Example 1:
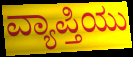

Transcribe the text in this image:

ವ್ಯಾಪ್ತಿಯು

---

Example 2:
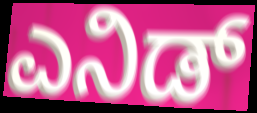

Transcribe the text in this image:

ಎನಿಡ್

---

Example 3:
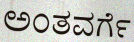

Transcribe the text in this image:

ಅಂತವರ್ಗೆ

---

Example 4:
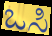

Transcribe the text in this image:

ಒಸಿ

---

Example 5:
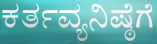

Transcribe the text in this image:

ಕರ್ತವ್ಯನಿಷ್ಠೆಗೆ